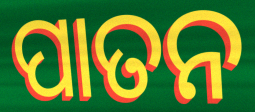
ପାତନ